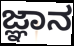
ಜ್ಞಾನ